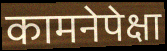
कामनेपेक्षा